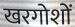
खरगोशों